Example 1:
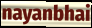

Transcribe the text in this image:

nayanbhai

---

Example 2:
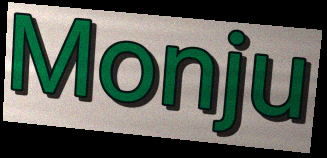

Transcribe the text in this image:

Monju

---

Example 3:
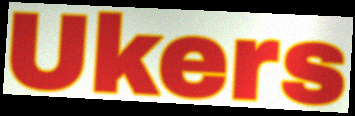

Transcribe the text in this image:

Ukers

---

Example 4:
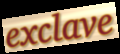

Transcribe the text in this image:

exclave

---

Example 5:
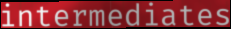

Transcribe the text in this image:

intermediates